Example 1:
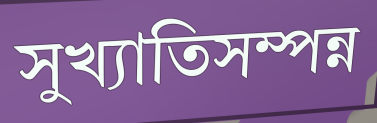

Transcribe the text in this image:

সুখ্যাতিসম্পন্ন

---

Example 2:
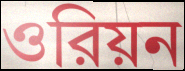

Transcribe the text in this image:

ওরিয়ন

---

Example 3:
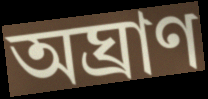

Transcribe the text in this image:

অঘ্রাণ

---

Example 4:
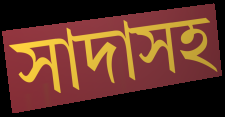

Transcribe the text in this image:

সাদাসহ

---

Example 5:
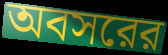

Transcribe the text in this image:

অবসরের